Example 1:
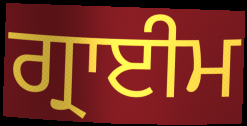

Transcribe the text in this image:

ਗ੍ਰਾਈਮ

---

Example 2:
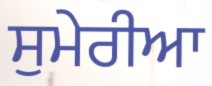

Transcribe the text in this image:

ਸੁਮੇਰੀਆ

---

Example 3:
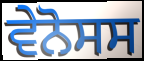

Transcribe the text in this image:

ਵੇਨੋਸਸ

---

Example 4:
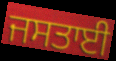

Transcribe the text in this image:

ਜਸਤਾਈ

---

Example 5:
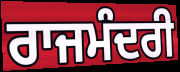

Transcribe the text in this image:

ਰਾਜਮੰਦਰੀ